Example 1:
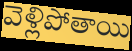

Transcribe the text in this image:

వెళ్లిపోతాయి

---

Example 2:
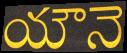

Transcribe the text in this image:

యౌనె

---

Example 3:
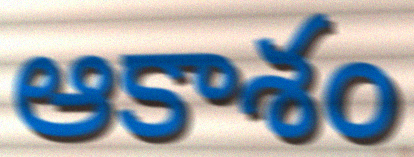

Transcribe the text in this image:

ఆకాశం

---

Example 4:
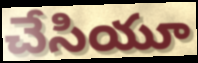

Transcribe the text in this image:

చేసియూ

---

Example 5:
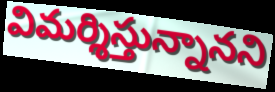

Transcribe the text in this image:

విమర్శిస్తున్నానని